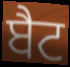
ਬੈਟ